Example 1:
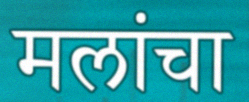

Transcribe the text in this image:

मलांचा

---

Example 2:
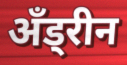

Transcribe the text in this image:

अँड्रीन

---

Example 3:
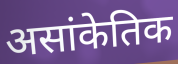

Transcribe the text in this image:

असांकेतिक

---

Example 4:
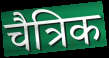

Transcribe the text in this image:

चैत्रिक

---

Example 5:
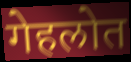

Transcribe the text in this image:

गेहलोत